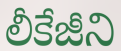
లీకేజీని